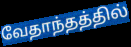
வேதாந்தத்தில்